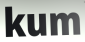
kum